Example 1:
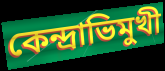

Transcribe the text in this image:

কেন্দ্রাভিমুখী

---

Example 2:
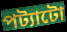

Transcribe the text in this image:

পট্যাটো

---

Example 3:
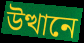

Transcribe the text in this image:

উত্থানে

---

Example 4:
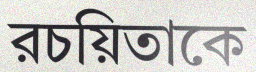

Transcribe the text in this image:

রচয়িতাকে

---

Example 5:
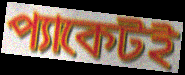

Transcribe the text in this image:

প্যাকেটই